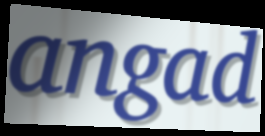
angad